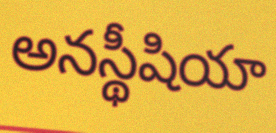
అనస్థీషియా